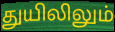
துயிலிலும்